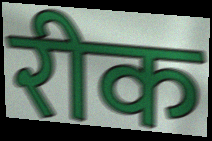
रीक